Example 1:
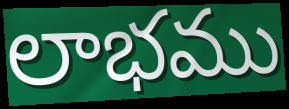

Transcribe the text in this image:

లాభము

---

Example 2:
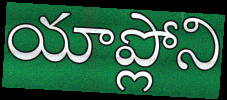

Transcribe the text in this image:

యాప్లోని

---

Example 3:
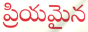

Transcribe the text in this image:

ప్రియమైన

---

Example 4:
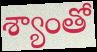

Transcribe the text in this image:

శ్యాంతో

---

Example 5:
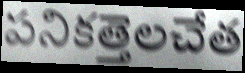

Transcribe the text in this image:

పనికత్తెలచేత